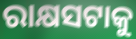
ରାକ୍ଷସଟାକୁ